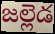
జల్లెడ